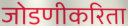
जोडणीकरिता